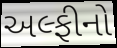
અલ્ફીનો